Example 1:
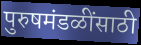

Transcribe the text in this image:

पुरुषमंडळींसाठी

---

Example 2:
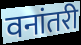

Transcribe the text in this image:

वनांतरी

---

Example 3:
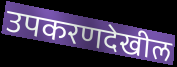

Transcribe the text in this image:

उपकरणदेखील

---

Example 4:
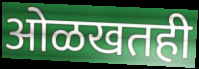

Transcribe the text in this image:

ओळखतही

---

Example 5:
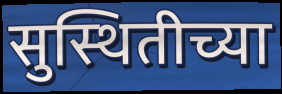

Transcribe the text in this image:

सुस्थितीच्या